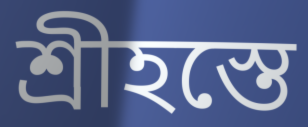
শ্রীহস্তে